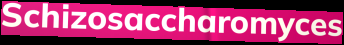
Schizosaccharomyces